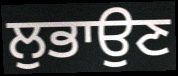
ਲੁਭਾਉਣ